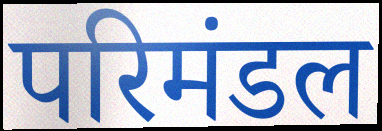
परिमंडल